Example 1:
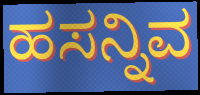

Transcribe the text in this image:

ಹಸನ್ನಿವ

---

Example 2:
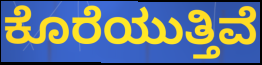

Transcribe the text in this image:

ಕೊರೆಯುತ್ತಿವೆ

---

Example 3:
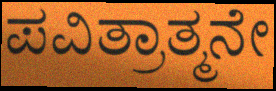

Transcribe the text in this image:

ಪವಿತ್ರಾತ್ಮನೇ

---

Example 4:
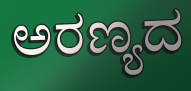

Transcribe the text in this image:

ಅರಣ್ಯದ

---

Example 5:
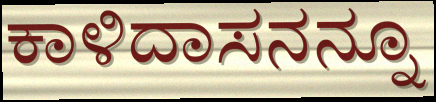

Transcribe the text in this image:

ಕಾಳಿದಾಸನನ್ನೂ